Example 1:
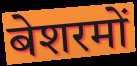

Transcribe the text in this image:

बेशरमों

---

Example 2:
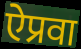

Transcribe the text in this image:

ऐप्रवा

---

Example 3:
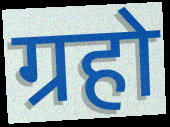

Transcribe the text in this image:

ग्रहो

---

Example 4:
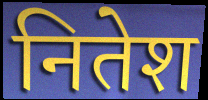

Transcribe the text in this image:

नितेश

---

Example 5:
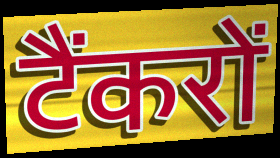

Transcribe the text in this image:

टैंकरों